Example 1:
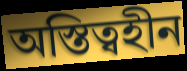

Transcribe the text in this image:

অস্তিত্বহীন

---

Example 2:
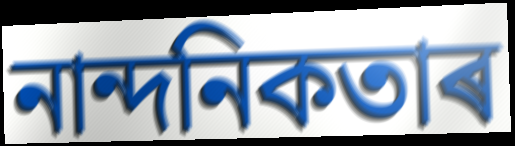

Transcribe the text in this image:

নান্দনিকতাৰ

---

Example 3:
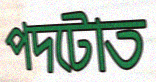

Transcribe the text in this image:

পদটোত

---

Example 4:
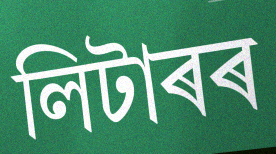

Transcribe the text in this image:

লিটাৰৰ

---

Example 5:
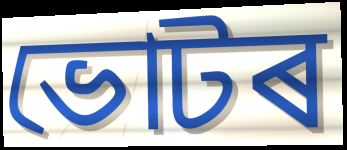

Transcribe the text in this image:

ভোটৰ